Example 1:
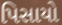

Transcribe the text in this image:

પિસાયો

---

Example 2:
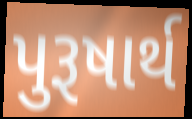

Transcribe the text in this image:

પુરૂષાર્થ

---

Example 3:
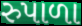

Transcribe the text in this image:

રુપાળા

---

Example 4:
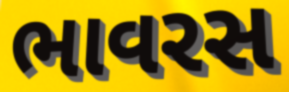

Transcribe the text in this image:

ભાવરસ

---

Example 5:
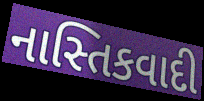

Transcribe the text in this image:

નાસ્તિકવાદી